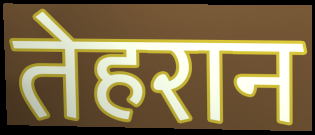
तेहरान